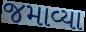
જમાવ્યા